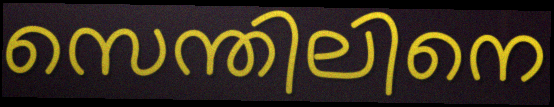
സെന്തിലിനെ